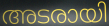
അടരായി